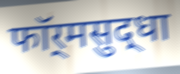
फॉर्मसुद्धा